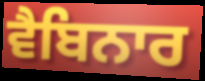
ਵੈਬਿਨਾਰ